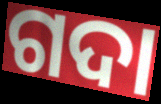
ଗଦା